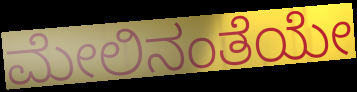
ಮೇಲಿನಂತೆಯೇ